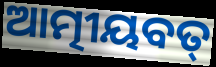
ଆତ୍ମୀୟବତ୍